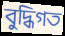
বুদ্ধিগত